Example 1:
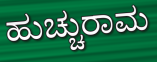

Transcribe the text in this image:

ಹುಚ್ಚುರಾಮ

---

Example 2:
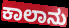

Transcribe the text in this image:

ಕಾಲಾನು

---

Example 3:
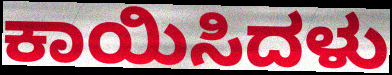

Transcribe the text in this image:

ಕಾಯಿಸಿದಳು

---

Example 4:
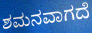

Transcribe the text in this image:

ಶಮನವಾಗದೆ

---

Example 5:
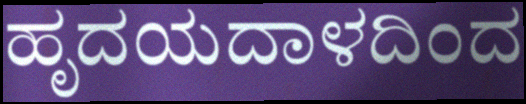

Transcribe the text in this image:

ಹೃದಯದಾಳದಿಂದ